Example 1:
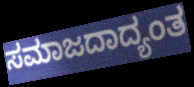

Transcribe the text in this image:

ಸಮಾಜದಾದ್ಯಂತ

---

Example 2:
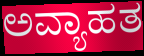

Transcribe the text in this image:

ಅವ್ಯಾಹತ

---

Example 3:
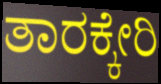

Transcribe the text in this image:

ತಾರಕ್ಕೇರಿ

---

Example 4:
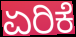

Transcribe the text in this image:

ಏರಿಕೆ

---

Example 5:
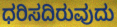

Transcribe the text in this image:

ಧರಿಸದಿರುವುದು